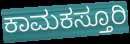
ಕಾಮಕಸ್ತೂರಿ